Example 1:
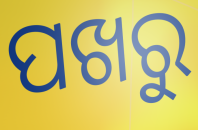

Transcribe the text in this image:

ପଖରୁ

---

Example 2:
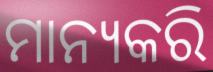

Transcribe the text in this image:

ମାନ୍ୟକରି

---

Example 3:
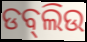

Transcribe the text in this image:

ଡବ୍‍ଲିଉ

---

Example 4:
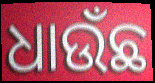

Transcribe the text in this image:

ଧାଉଁଛ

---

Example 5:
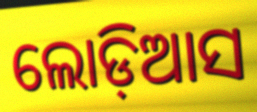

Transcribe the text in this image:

ଲୋଡ଼ିଆସ